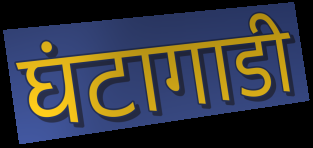
घंटागाडी